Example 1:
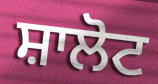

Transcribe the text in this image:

ਸ਼ਾਲੋਟ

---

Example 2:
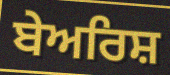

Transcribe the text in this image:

ਬੇਅਰਿਸ਼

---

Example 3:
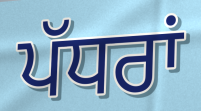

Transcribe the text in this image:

ਪੱਧਰਾਂ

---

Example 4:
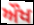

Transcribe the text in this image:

ਔਖ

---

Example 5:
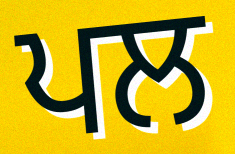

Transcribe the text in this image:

ਪਲ